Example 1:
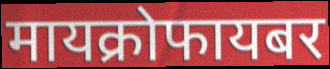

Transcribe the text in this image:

मायक्रोफायबर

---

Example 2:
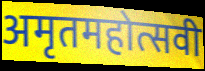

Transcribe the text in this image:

अमृतमहोत्सवी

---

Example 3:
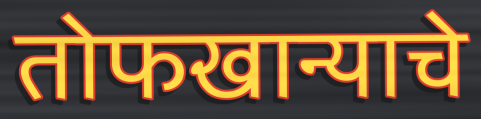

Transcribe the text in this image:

तोफखान्याचे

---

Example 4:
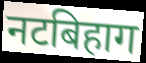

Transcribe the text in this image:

नटबिहाग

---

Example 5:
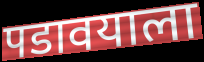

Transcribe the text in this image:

पडावयाला